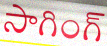
సాగింగ్